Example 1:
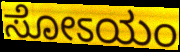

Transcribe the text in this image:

ಸೋಽಯಂ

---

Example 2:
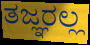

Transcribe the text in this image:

ತಜ್ಞರಲ್ಲ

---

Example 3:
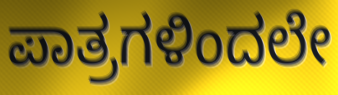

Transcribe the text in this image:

ಪಾತ್ರಗಳಿಂದಲೇ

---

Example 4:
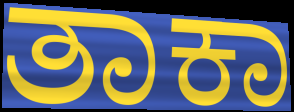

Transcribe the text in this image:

ತಾಕಾ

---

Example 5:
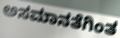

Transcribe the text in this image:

ಅಸಮಾನತೆಗಿಂತ